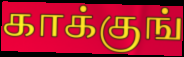
காக்குங்